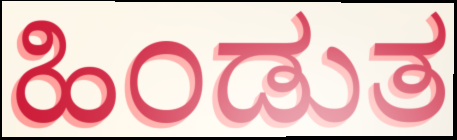
ಹಿಂಡುತ